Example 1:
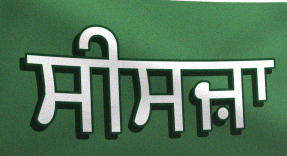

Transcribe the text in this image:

ਸੀਸਜ਼ਾ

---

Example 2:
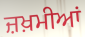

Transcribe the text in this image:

ਜ਼ਖ਼ਮੀਆਂ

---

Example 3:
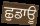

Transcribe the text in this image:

ਛੁਡਾਊ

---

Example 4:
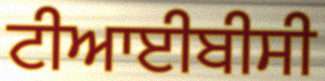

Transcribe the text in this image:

ਟੀਆਈਬੀਸੀ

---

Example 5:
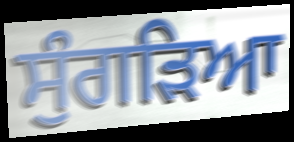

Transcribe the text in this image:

ਸੁੰਗੜਿਆ